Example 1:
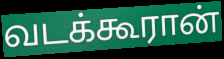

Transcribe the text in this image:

வடக்கூரான்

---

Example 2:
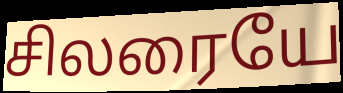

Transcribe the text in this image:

சிலரையே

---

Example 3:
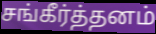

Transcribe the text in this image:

சங்கீர்த்தனம்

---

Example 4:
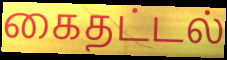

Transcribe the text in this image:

கைதட்டல்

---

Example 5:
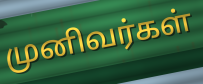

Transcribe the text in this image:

முனிவர்கள்